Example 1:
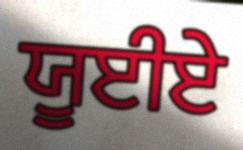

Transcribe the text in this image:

ਯੂਈਏ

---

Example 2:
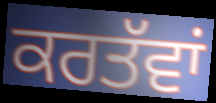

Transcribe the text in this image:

ਕਰਤੱਵਾਂ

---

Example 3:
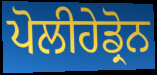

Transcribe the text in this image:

ਪੋਲੀਹੇਡ੍ਰੋਨ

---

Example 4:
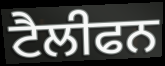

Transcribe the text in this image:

ਟੈਲੀਫਨ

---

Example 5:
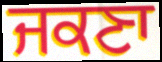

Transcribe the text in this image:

ਜਕਣਾ